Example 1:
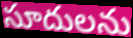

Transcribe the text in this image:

సూదులను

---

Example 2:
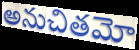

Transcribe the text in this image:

అనుచితమో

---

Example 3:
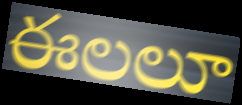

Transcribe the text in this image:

ఈలలూ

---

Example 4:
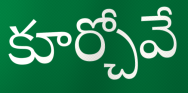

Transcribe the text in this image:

కూర్చోవే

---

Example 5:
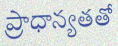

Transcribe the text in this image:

ప్రాధాన్యతతో